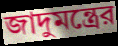
জাদুমন্ত্রের